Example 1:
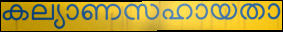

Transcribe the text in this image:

കല്യാണസഹായതാ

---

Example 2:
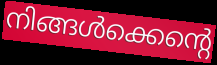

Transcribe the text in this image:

നിങ്ങൾക്കെന്റെ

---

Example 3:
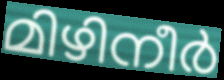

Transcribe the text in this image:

മിഴിനീർ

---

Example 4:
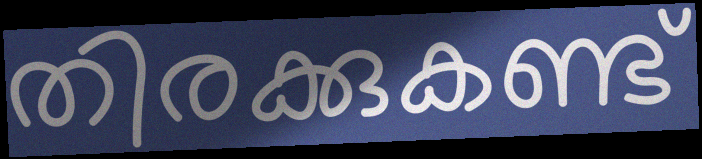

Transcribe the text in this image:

തിരക്കുകണ്ട്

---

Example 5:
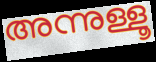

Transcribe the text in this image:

അന്നുള്ളൂ